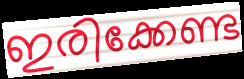
ഇരിക്കേണ്ട